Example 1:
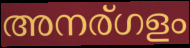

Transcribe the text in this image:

അനര്ഗളം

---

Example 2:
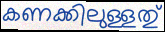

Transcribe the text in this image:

കണക്കിലുള്ളതു്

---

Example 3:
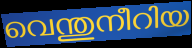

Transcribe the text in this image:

വെന്തുനീറിയ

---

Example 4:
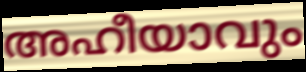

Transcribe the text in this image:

അഹീയാവും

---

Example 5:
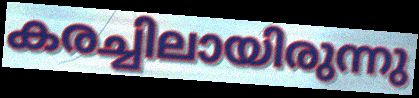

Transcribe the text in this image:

കരച്ചിലായിരുന്നു